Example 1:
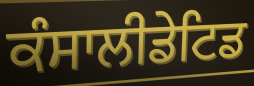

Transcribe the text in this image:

ਕੰਸਾਲੀਡੇਟਿਡ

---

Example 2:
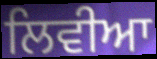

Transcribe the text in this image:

ਲਿਵੀਆ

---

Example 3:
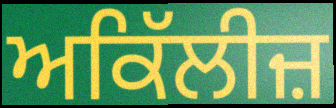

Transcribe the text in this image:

ਅਕਿੱਲੀਜ਼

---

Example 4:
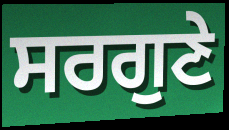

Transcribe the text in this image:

ਸਰਗੁਣੇ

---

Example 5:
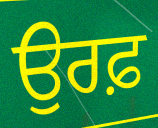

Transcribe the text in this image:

ਉਰਫ਼